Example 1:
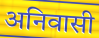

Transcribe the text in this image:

अनिवासी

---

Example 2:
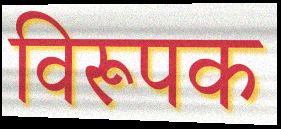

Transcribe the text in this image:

विरूपक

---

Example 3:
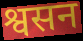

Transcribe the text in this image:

श्वसन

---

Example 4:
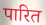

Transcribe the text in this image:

पारित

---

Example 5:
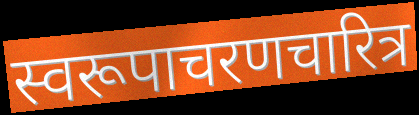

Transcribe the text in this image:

स्वरूपाचरणचारित्र